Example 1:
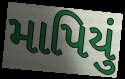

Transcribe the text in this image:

માપિયું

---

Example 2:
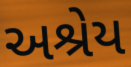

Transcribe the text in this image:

અશ્રેય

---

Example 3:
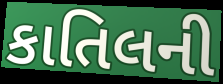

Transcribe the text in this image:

કાતિલની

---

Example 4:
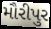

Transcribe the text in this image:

મૌરીપુર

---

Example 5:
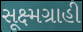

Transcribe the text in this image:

સૂક્ષ્મગ્રાહી